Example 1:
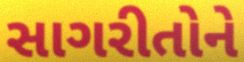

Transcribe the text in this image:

સાગરીતોને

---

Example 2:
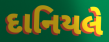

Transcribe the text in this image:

દાનિયલે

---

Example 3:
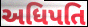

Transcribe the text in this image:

અધિપતિ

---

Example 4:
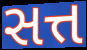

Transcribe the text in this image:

સત્ત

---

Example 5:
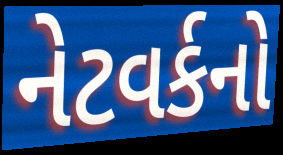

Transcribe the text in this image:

નેટવર્કનો